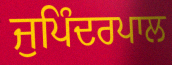
ਜੁਪਿੰਦਰਪਾਲ